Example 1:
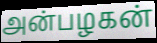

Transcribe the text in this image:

அன்பழகன்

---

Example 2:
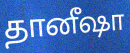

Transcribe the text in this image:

தானீஷா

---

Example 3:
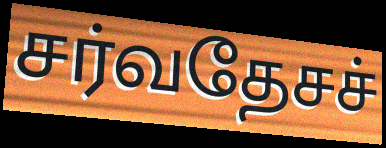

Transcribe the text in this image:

சர்வதேசச்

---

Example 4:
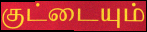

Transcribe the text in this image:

குட்டையும்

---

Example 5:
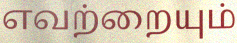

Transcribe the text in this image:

எவற்றையும்